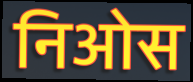
निओस